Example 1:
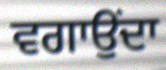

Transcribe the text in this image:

ਵਗਾਉਂਦਾ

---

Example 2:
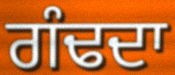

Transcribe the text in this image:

ਗੰਢਦਾ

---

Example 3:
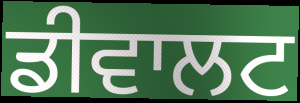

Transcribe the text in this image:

ਡੀਵਾਲਟ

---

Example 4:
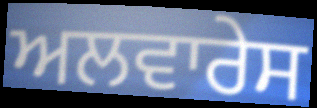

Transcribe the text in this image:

ਅਲਵਾਰੇਸ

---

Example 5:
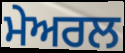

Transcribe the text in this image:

ਮੇਅਰਲ